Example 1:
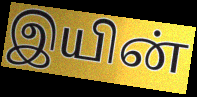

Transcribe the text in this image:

இயின்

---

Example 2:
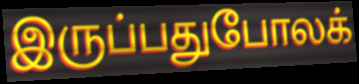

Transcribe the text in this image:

இருப்பதுபோலக்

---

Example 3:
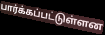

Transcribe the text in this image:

பார்க்கப்பட்டுள்ளன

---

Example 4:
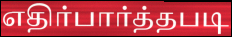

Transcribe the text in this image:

எதிர்பார்த்தபடி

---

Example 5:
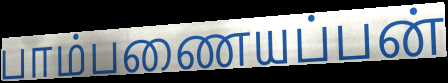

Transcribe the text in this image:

பாம்பணையப்பன்